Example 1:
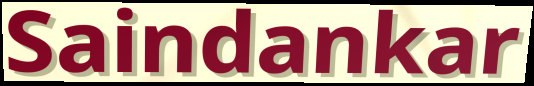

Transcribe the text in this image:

Saindankar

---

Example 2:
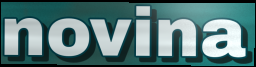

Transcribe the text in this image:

novina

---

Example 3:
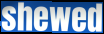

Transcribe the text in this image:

shewed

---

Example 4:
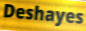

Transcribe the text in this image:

Deshayes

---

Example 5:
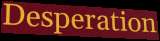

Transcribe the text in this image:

Desperation